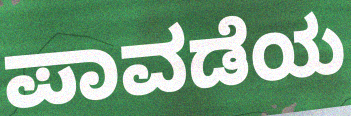
ಪಾವಡೆಯ